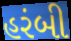
હરંબી